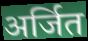
अर्जित